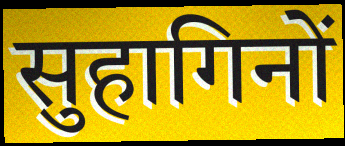
सुहागिनों